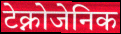
टेक्नोजेनिक